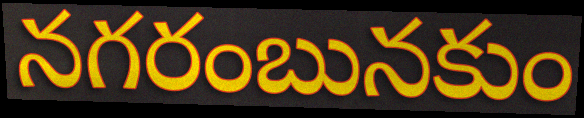
నగరంబునకుం